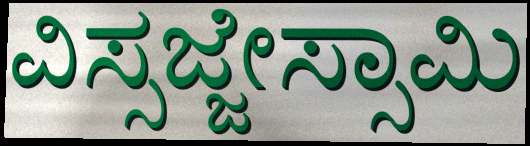
ವಿಸ್ಸಜ್ಜೇಸ್ಸಾಮಿ